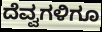
ದೆವ್ವಗಳಿಗೂ